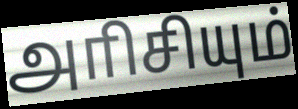
அரிசியும்